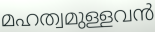
മഹത്വമുള്ളവൻ